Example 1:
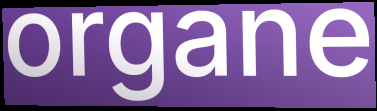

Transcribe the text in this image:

organe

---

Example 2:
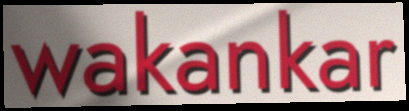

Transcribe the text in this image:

wakankar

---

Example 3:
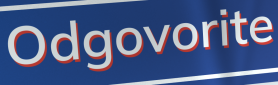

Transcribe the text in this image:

Odgovorite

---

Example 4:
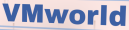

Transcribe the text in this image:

VMworld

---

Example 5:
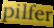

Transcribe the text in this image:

pilfer